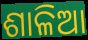
ଶାଳିଆ